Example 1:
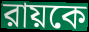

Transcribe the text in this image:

রায়কে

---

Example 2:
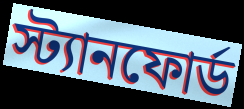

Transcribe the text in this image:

স্ট্যানফোর্ড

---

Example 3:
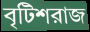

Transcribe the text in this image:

বৃটিশরাজ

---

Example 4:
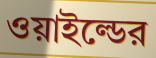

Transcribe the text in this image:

ওয়াইল্ডের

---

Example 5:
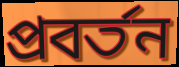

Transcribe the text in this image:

প্রবর্তন